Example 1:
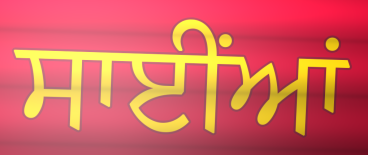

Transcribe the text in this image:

ਸਾਈਂਆਂ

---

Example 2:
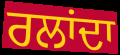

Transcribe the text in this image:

ਰਲਾਂਦਾ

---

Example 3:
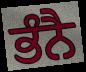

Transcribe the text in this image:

ਭੰਨੈ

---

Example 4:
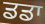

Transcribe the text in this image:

ਡਡਾ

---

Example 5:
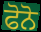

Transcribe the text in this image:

ਫੋਨੋ